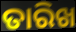
ତାରିଖ